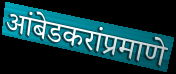
आंबेडकरांप्रमाणे